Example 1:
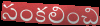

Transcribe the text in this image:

సంకలించి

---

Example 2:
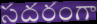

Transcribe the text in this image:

సదరంగా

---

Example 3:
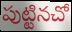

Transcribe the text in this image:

పుట్టినచో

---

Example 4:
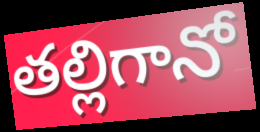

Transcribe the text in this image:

తల్లిగానో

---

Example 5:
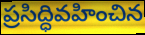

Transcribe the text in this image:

ప్రసిద్ధివహించిన